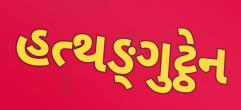
હત્થઙ્ગુટ્ઠેન